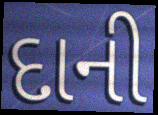
દાની